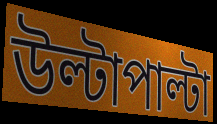
উল্টাপাল্টা